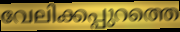
വേലിക്കപ്പുറത്തെ